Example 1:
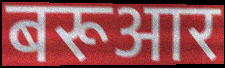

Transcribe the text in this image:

बरूआर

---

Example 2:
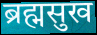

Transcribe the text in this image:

ब्रह्मसुख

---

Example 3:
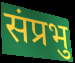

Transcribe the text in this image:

संप्रभु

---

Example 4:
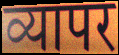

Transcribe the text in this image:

व्यापर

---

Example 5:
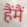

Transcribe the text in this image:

हैंमैं